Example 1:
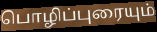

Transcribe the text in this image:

பொழிப்புரையும்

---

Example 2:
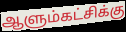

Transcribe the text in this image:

ஆளும்கட்சிக்கு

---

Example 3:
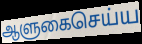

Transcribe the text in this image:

ஆளுகைசெய்ய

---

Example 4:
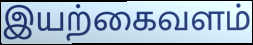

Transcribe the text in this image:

இயற்கைவளம்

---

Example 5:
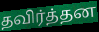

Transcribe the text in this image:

தவிர்த்தன